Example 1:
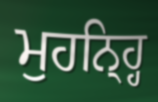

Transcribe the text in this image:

ਮੁਹਨ੍ਹ੍ਹਿ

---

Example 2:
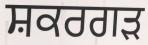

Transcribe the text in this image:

ਸ਼ਕਰਗੜ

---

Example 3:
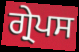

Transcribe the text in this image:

ਗ੍ਰੇਪਸ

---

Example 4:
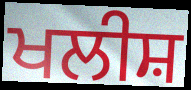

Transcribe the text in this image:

ਖਲੀਸ਼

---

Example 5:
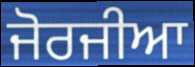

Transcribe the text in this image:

ਜੋਰਜੀਆ